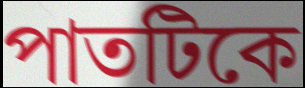
পাতটিকে